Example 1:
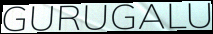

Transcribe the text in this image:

GURUGALU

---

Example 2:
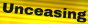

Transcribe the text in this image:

Unceasing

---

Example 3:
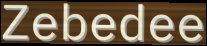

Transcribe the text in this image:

Zebedee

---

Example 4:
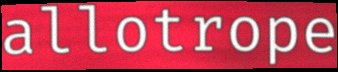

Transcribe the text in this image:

allotrope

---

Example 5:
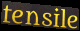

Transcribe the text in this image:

tensile